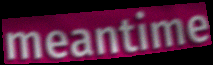
meantime